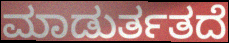
ಮಾಡುರ್ತತದೆ